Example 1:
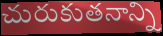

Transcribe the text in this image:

చురుకుతనాన్ని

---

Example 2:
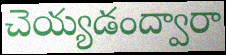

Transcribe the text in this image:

చెయ్యడంద్వారా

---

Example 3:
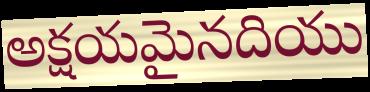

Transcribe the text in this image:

అక్షయమైనదియు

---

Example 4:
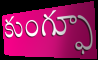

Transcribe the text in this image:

కుంగ్ఫూ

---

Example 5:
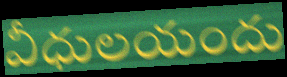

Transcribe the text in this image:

వీధులయందు